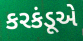
કરકંડૂએ